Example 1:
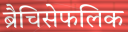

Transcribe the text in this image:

ब्रैचिसेफलिक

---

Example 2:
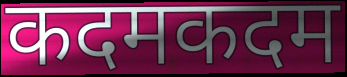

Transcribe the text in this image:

कदमकदम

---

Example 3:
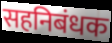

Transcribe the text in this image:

सहनिबंधक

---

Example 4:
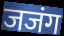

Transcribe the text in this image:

जजंग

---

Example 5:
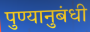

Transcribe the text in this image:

पुण्यानुबंधी